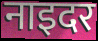
नाइदर